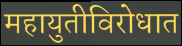
महायुतीविरोधात